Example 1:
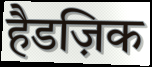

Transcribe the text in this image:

हैडज़िक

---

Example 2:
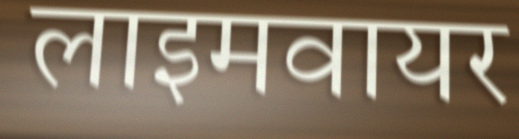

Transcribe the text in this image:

लाइमवायर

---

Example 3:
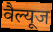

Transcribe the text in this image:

वैल्यूज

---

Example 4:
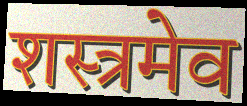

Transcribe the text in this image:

शस्त्रमेव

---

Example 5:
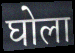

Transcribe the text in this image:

घोला